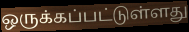
ஒருக்கப்பட்டுள்ளது